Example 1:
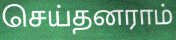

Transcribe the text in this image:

செய்தனராம்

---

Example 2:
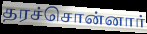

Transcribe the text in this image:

தரச்சொன்னார்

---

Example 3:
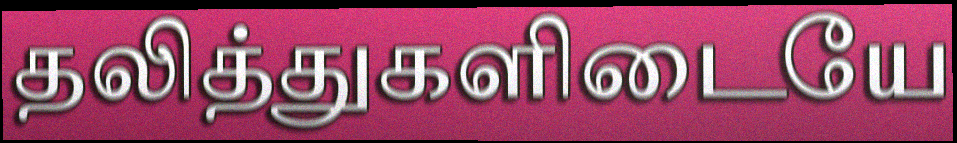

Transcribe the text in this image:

தலித்துகளிடையே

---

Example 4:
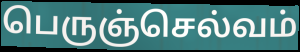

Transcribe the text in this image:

பெருஞ்செல்வம்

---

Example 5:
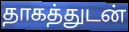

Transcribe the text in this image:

தாகத்துடன்